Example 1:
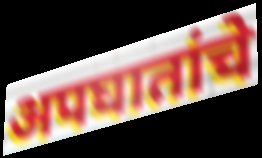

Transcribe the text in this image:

अपघातांचे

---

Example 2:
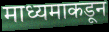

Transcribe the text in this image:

माध्यमाकडून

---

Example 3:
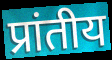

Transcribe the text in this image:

प्रांतीय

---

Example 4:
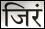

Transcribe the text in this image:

जिरं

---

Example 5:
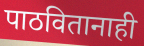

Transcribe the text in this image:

पाठवितानाही